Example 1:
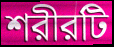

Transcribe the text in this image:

শরীরটি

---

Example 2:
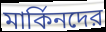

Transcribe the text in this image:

মার্কিনদের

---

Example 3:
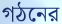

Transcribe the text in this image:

গঠনের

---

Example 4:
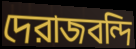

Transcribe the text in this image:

দেরাজবন্দি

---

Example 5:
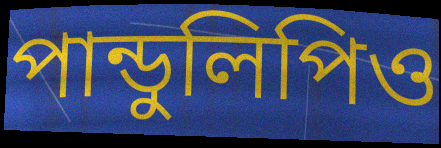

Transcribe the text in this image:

পান্ডুলিপিও